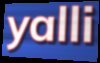
yalli